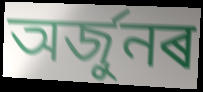
অৰ্জুনৰ